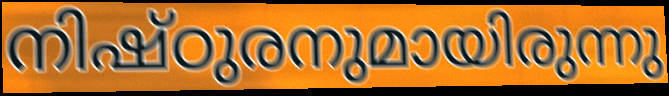
നിഷ്ഠുരനുമായിരുന്നു